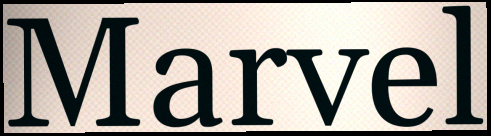
Marvel